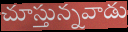
చూస్తున్నవాడు